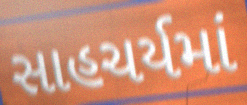
સાહચર્યમાં